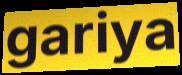
gariya